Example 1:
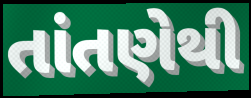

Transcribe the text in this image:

તાંતણેથી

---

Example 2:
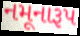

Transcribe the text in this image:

નમૂનારૂપ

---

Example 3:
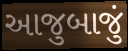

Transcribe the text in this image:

આજુબાજું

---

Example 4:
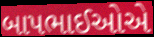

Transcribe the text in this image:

બાપભાઈઓએ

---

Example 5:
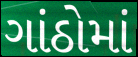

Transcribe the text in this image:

ગાંઠોમાં